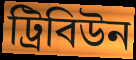
ট্রিবিউন